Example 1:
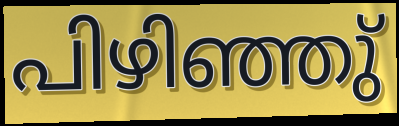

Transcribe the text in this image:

പിഴിഞ്ഞു്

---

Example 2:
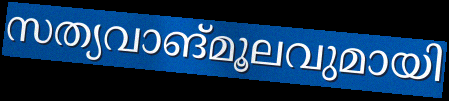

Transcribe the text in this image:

സത്യവാങ്മൂലവുമായി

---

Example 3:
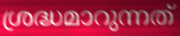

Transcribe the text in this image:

ശ്രദ്ധമാറുന്നത്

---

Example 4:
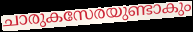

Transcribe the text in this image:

ചാരുകസേരയുണ്ടാകും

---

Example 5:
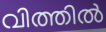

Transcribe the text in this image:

വിത്തിൽ